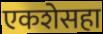
एकशेसहा